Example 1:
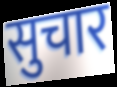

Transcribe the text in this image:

सुचार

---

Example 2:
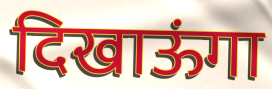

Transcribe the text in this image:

दिखाऊंगा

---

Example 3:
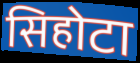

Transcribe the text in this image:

सिहोटा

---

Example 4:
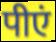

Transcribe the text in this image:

पीएं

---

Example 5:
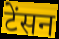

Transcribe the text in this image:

टेंसन